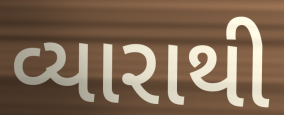
વ્યારાથી